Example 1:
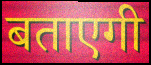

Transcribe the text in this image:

बताएगी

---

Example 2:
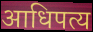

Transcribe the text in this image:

आधिपत्य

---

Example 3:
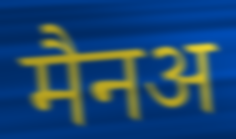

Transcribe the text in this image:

मैनअ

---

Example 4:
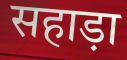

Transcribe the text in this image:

सहाड़ा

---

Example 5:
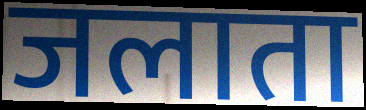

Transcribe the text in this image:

जलाता